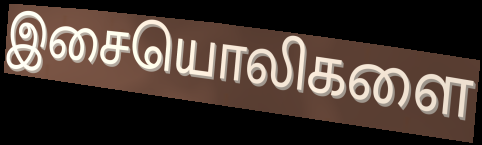
இசையொலிகளை